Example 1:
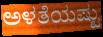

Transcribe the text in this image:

ಅಳತೆಯಷ್ಟು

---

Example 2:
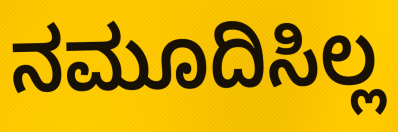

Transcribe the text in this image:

ನಮೂದಿಸಿಲ್ಲ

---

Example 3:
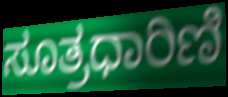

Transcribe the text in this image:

ಸೂತ್ರಧಾರಿಣಿ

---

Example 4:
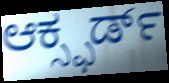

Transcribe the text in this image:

ಆಕ್ಸ್ಫರ್ಡ್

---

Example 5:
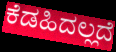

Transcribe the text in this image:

ಕೆಡಹಿದಲ್ಲದೆ